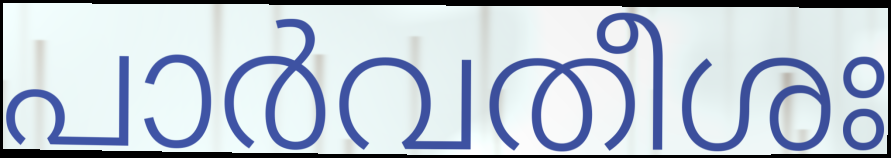
പാർവതീശഃ